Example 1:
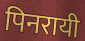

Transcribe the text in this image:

पिनरायी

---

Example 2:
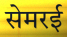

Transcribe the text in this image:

सेमरई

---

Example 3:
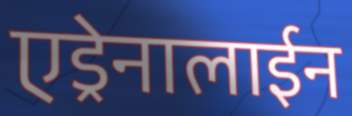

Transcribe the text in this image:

एड्रेनालाईन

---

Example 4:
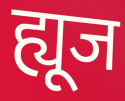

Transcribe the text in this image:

ह्यूज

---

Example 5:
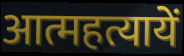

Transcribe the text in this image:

आत्महत्यायें